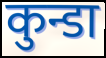
कुन्डा